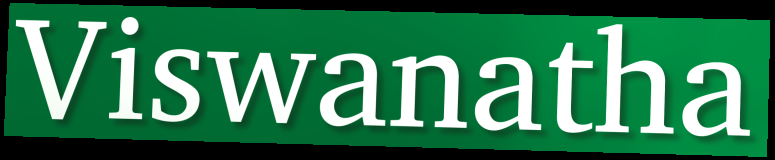
Viswanatha